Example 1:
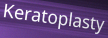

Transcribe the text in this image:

Keratoplasty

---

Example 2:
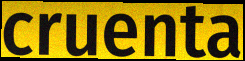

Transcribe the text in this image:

cruenta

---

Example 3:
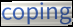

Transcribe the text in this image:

coping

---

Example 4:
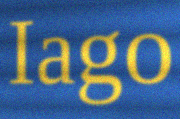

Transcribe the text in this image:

Iago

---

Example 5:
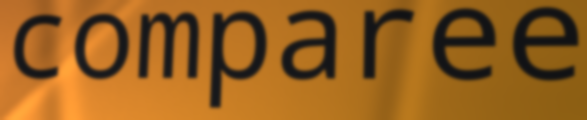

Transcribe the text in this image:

comparee